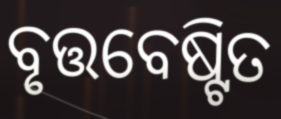
ବୃତ୍ତବେଷ୍ଟିତ